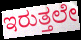
ಇರುತ್ತಲೇ